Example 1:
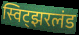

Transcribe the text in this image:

स्विट्झरलंड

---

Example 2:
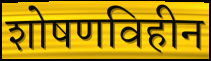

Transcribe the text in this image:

शोषणविहीन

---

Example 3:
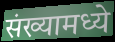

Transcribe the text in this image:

संख्यामध्ये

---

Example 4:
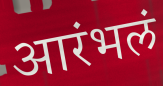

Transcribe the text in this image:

आरंभलं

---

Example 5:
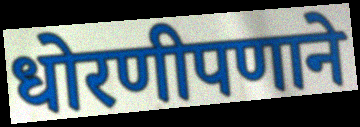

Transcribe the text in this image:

धोरणीपणाने